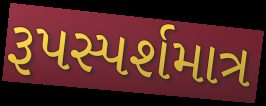
રૂપસ્પર્શમાત્ર